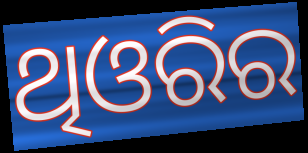
ଥିଓରିର